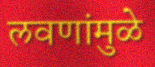
लवणांमुळे